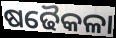
ଷଢୈକଳା